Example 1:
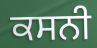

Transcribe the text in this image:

ਕਸਨੀ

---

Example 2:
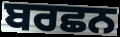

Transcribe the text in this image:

ਬਰਛਨ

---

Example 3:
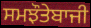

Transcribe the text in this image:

ਸਮਝੌਤੇਬਾਜੀ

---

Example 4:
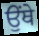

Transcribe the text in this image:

ਉੰਥੇ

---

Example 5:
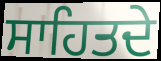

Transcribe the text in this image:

ਸਾਹਿਤਦੇ